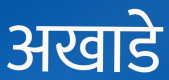
अखाडे